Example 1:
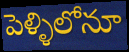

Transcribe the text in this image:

పెళ్ళిలోనూ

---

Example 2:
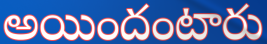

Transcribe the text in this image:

అయిందంటారు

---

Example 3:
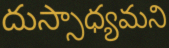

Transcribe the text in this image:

దుస్సాధ్యమని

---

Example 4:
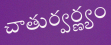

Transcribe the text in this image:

చాతుర్వర్ణ్యం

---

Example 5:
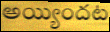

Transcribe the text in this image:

అయ్యిందట